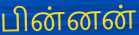
பின்னன்